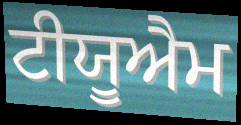
ਟੀਯੂਐਮ